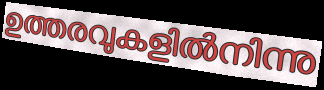
ഉത്തരവുകളിൽനിന്നു